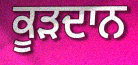
ਕੂੜਦਾਨ